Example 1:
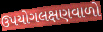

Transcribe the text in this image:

ઉપયોગલક્ષણવાળો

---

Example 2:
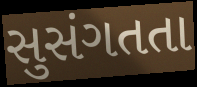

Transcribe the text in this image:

સુસંગતતા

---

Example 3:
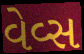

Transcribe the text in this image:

વેવ્સ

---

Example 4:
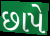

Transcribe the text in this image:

છાપે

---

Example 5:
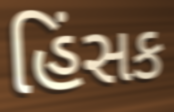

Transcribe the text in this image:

હિંસક